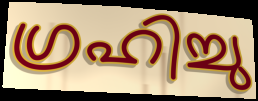
ഗ്രഹിച്ചു